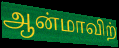
ஆன்மாவிற்